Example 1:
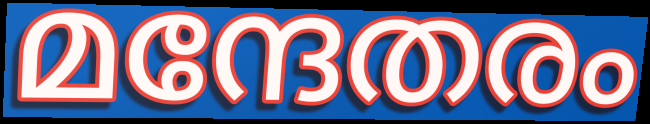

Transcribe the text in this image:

മന്ദേതരം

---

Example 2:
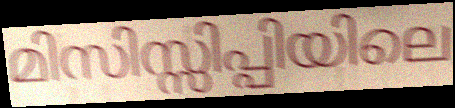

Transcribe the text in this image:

മിസിസ്സിപ്പിയിലെ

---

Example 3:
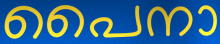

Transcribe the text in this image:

പൈനാ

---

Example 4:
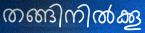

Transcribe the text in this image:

തങ്ങിനിൽക്കൂ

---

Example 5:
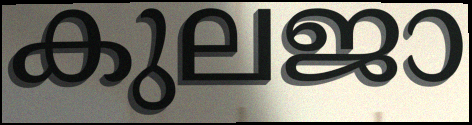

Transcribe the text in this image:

കുലജാ